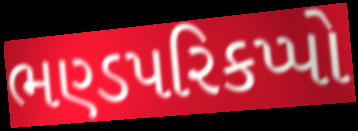
ભણ્ડપરિકપ્પો